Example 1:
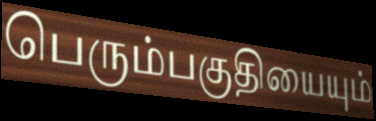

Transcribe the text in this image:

பெரும்பகுதியையும்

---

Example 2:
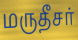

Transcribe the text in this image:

மருதீசர்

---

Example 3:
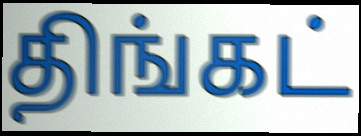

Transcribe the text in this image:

திங்கட்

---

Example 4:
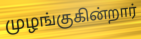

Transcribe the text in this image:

முழங்குகின்றார்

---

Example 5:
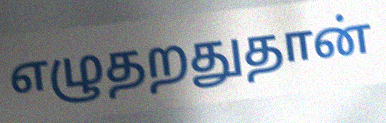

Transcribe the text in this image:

எழுதறதுதான்